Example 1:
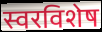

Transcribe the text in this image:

स्वरविशेष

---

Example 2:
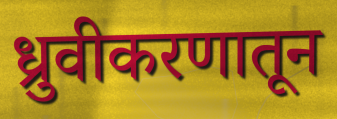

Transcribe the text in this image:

ध्रुवीकरणातून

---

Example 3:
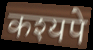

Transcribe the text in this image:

कश्यपे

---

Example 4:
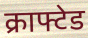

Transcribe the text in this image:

क्राफ्टेड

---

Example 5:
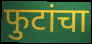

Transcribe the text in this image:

फुटांचा